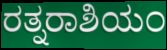
ರತ್ನರಾಶಿಯಂ